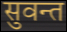
सुवन्त